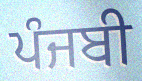
ਪੰਜਬੀ